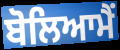
ਬੋਲਿਆਮੈਂ